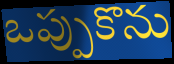
ఒప్పుకొను